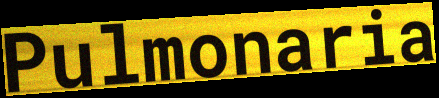
Pulmonaria